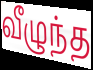
வீழுந்த